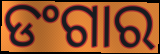
ଡଂଗାର